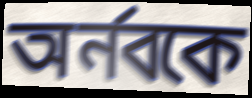
অর্নবকে